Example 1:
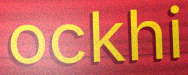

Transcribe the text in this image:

ockhi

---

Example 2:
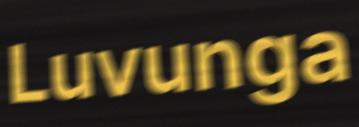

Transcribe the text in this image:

Luvunga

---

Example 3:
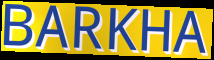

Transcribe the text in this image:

BARKHA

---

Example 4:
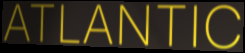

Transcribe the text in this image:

ATLANTIC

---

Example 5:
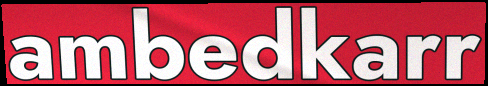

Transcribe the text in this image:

ambedkarr